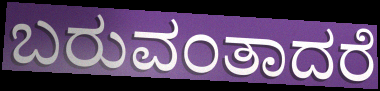
ಬರುವಂತಾದರೆ